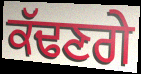
ਕੱਢਣਗੇ